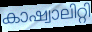
കാഷ്വാലിറ്റി